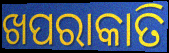
ଖପରାକାତି